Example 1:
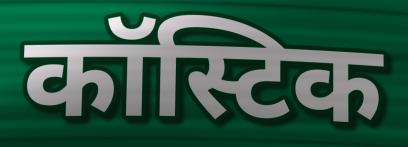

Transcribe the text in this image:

कॉस्टिक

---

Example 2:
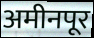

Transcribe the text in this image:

अमीनपूर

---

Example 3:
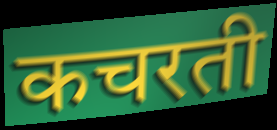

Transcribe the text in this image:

कचरती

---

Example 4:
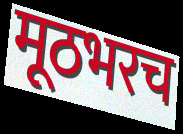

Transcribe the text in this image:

मूठभरच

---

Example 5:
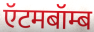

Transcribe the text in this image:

ऍटमबॉम्ब